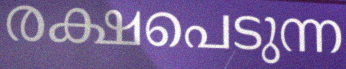
രക്ഷപെടുന്ന